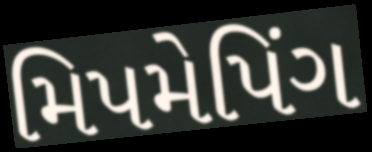
મિપમેપિંગ